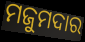
ମଜୁମଦାର